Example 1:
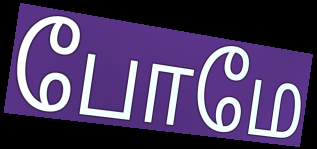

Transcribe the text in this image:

போமே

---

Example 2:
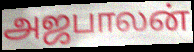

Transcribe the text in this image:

அஜபாலன்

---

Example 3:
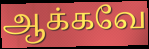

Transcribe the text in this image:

ஆக்கவே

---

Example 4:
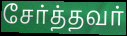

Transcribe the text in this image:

சேர்த்தவர்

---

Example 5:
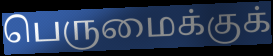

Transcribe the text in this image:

பெருமைக்குக்